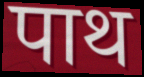
पाथ